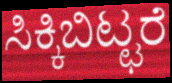
ಸಿಕ್ಕಿಬಿಟ್ಟರೆ